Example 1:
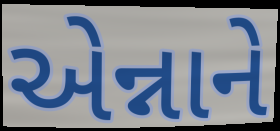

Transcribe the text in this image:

એન્નાને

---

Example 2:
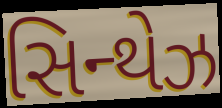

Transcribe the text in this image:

સિન્થેઝ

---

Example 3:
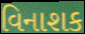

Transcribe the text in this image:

વિનાશક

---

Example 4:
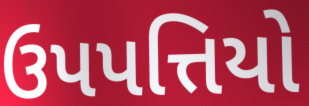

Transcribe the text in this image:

ઉપપત્તિયો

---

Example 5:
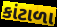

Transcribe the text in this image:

કાંટાળા